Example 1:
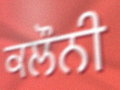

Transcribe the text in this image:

ਕਲੌਨੀ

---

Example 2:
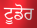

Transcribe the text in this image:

ਟੂਡੋਰ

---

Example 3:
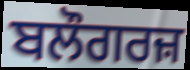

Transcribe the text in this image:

ਬਲੌਗਰਜ਼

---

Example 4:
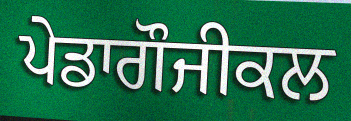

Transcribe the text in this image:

ਪੇਡਾਗੌਜੀਕਲ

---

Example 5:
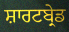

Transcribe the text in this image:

ਸ਼ਾਰਟਬ੍ਰੇਡ